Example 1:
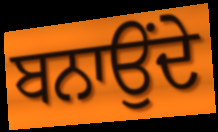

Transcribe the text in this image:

ਬਨਾਉਂਦੇ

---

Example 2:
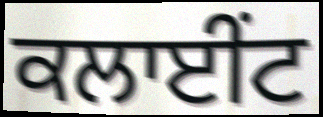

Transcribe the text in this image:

ਕਲਾਈਂਟ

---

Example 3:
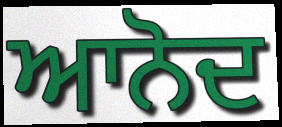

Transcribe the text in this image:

ਆਨੋਦ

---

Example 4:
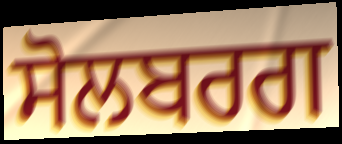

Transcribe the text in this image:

ਸੋਲਬਰਗ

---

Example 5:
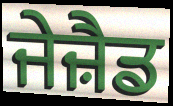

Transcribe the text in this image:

ਜੇਜ਼ੈਡ